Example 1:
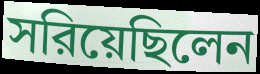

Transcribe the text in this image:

সরিয়েছিলেন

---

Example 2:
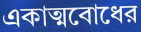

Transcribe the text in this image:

একাত্মবোধের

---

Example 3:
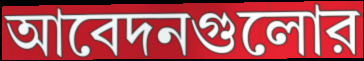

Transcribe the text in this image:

আবেদনগুলোর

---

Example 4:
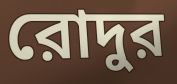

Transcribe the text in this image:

রোদুর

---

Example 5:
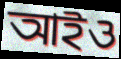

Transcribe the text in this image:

আইও